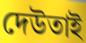
দেউতাই